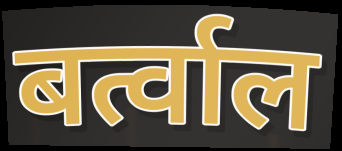
बर्त्वाल